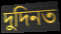
দুদিনত